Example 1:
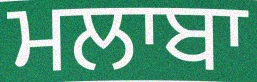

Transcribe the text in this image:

ਮਲਾਬਾ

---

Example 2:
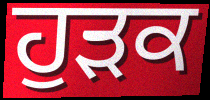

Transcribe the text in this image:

ਹੁੜਕ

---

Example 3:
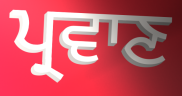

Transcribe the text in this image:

ਪ੍ਰਵਾਣ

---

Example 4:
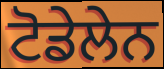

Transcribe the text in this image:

ਟੋਡੇਲੇਨ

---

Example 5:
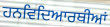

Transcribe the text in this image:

ਹਨਵਿਦਿਆਰਥੀਆਂ